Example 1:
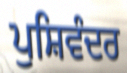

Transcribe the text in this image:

ਪੁਸ਼ਿਵੰਦਰ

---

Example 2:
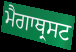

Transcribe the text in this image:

ਮੈਗਾਥ੍ਰਸਟ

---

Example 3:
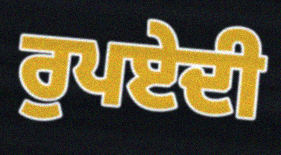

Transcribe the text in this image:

ਰੁਪਏਦੀ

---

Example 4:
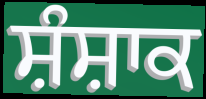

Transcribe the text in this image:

ਸ਼ੰਸ਼ਾਕ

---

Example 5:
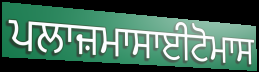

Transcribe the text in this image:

ਪਲਾਜ਼ਮਾਸਾਈਟੋਮਾਸ